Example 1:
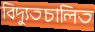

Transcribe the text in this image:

বিদ্যুতচালিত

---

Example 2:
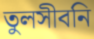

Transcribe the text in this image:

তুলসীবনি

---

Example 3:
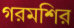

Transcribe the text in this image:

গরমশির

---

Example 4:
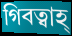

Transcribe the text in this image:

গিবত্বাহ্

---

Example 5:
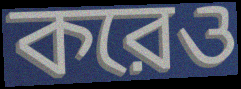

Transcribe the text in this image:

করেও